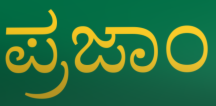
ಪ್ರಜಾಂ